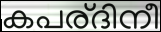
കപര്ദിനീ